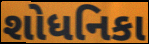
શોધનિકા